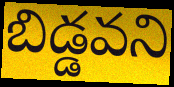
బిడ్డవని